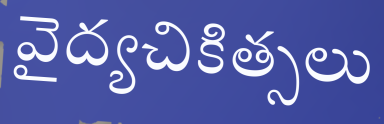
వైద్యచికిత్సలు